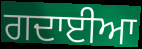
ਗਦਾਈਆ